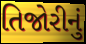
તિજોરીનું